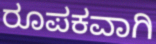
ರೂಪಕವಾಗಿ